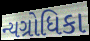
ન્યગ્રોધિકા